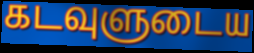
கடவுளுடைய